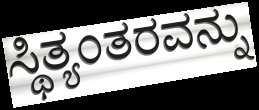
ಸ್ಥಿತ್ಯಂತರವನ್ನು